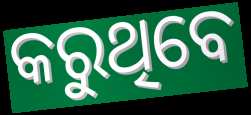
କରୁଥିବେ